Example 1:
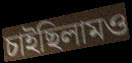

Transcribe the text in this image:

চাইছিলামও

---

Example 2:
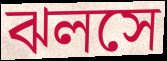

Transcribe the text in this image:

ঝলসে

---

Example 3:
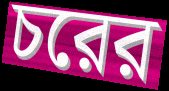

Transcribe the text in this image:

চরের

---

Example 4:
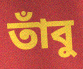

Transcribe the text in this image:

তাঁবু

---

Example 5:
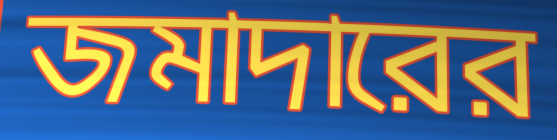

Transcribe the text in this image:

জমাদারের